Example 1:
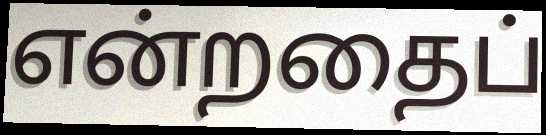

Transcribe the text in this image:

என்றதைப்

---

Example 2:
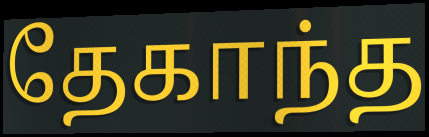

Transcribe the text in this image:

தேகாந்த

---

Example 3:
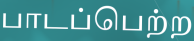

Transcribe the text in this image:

பாடப்பெற்ற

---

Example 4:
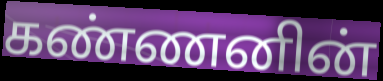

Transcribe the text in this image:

கண்ணனின்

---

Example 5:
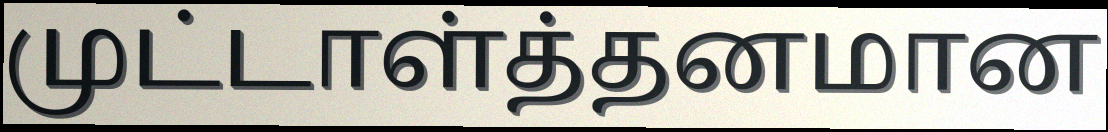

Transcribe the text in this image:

முட்டாள்த்தனமான